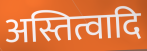
अस्तित्वादि